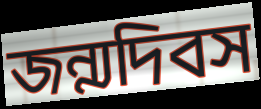
জন্মদিবস